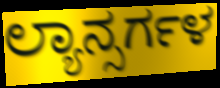
ಲ್ಯಾನ್ಸರ್ಗಳ